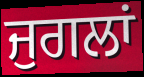
ਜੁਗਲਾਂ